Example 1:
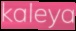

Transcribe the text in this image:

kaleya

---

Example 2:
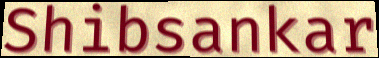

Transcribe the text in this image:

Shibsankar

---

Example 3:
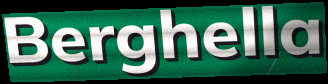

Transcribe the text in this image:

Berghella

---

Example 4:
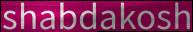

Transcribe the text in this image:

shabdakosh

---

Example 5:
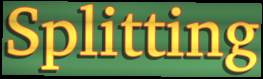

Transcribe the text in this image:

Splitting